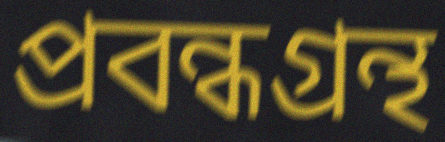
প্ৰবন্ধগ্ৰন্থ